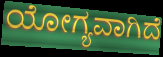
ಯೋಗ್ಯವಾಗಿದೆ